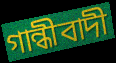
গান্ধীবাদী